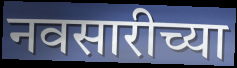
नवसारीच्या